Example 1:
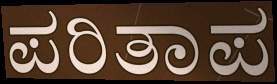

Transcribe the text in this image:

ಪರಿತಾಪ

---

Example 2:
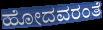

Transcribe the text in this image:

ಹೋದವರಂತೆ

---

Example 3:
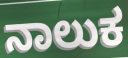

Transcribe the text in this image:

ನಾಲುಕ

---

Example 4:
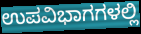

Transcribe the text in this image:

ಉಪವಿಭಾಗಗಳಲ್ಲಿ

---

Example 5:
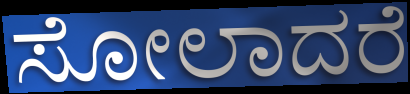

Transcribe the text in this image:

ಸೋಲಾದರೆ